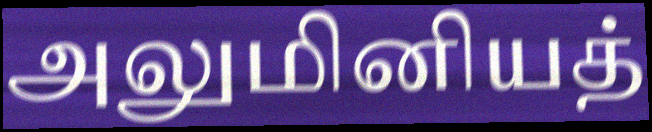
அலுமினியத்